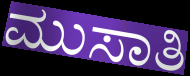
ಮುಸಾತಿ